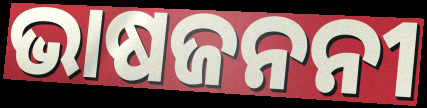
ଭାଷଜନନୀ